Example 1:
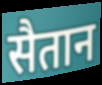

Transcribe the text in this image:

सैतान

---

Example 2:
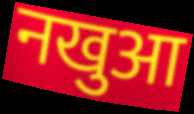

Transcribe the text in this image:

नखुआ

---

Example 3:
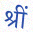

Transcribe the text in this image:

श्रीं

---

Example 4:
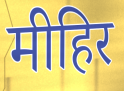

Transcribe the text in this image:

मीहिर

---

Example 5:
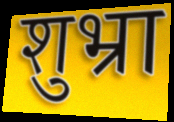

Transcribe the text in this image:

शुभ्रा